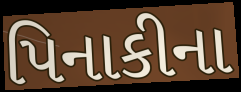
પિનાકીના